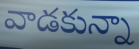
వాడకున్నా